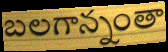
బలగాన్నంతా